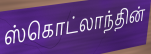
ஸ்கொட்லாந்தின்